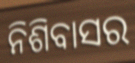
ନିଶିବାସର